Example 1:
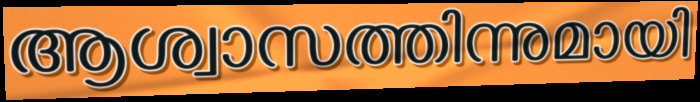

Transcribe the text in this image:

ആശ്വാസത്തിന്നുമായി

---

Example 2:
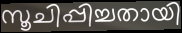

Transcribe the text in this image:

സൂചിപ്പിച്ചതായി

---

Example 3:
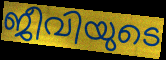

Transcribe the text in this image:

ജീവിയുടെ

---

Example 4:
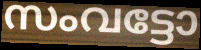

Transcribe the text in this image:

സംവട്ടോ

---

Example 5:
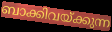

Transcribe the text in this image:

ബാക്കിവയ്ക്കുന്ന